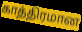
காத்திரமான